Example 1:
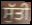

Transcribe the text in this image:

ਸੁੱਤੀ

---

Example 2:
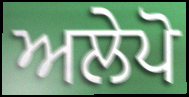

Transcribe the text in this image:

ਅਲੇਪੋ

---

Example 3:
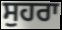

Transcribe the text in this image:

ਸੁਹਰਾ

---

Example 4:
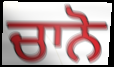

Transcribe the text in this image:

ਚਾਨੋ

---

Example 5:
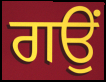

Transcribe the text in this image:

ਗਉਂ